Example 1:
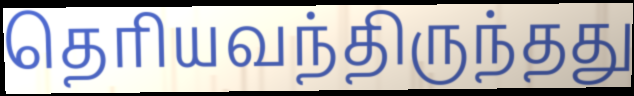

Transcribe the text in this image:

தெரியவந்திருந்தது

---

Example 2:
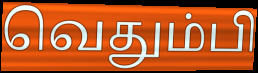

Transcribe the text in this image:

வெதும்பி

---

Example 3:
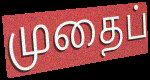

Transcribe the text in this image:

முதைப்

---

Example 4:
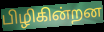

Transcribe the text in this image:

பிழிகின்றன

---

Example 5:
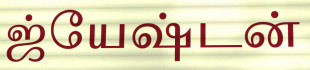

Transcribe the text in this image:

ஜ்யேஷ்டன்